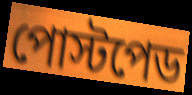
পোস্টপেড